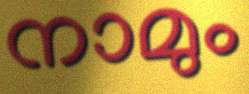
നാമും